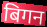
बिगन